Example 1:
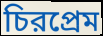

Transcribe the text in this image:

চিরপ্রেম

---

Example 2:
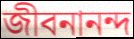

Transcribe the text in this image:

জীবনানন্দ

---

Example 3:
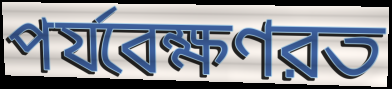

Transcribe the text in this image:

পর্যবেক্ষণরত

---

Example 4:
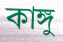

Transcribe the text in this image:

কাঙ্গু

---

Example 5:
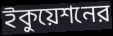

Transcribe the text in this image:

ইকুয়েশনের